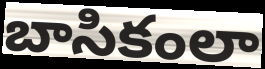
బాసికంలా